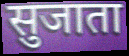
सुजाता